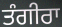
ਤੰਗੀਰਾ